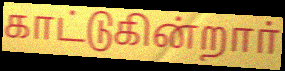
காட்டுகின்றார்